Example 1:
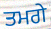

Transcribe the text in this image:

ਤਮਗੇ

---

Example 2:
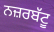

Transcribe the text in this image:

ਨਜ਼ਰਬੱਟੂ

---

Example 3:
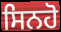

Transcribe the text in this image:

ਸਿਨਹੋ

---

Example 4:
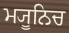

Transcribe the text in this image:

ਮ੍ਯੂਨਿਚ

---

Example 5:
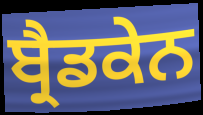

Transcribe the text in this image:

ਬ੍ਰੈਡਕੇਨ